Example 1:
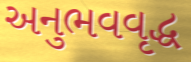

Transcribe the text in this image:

અનુભવવૃદ્ધ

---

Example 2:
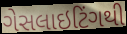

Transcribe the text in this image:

ગેસલાઇટિંગથી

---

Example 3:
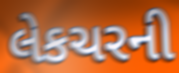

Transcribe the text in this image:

લેકચરની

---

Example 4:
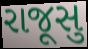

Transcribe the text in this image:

રાજૂસુ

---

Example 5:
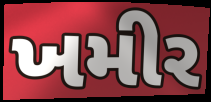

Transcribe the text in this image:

ખમીર